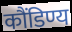
कौंडिण्य